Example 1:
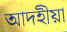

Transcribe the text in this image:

আদহীয়া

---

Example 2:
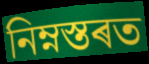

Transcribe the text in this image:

নিম্নস্তৰত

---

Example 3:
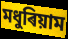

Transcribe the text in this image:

মধুৰিয়াম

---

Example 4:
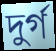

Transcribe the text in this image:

দুৰ্গ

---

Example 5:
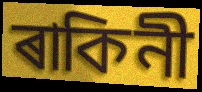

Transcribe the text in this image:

ৰাকিনী